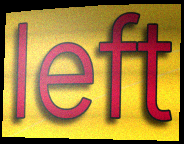
left